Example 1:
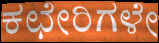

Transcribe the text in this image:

ಕಛೇರಿಗಳೇ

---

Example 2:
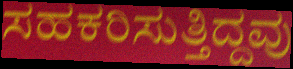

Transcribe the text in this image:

ಸಹಕರಿಸುತ್ತಿದ್ದವು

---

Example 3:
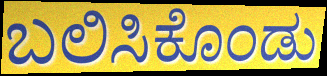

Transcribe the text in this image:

ಬಲಿಸಿಕೊಂಡು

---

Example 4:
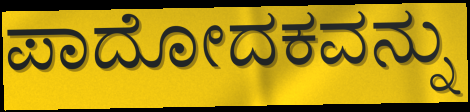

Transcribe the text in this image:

ಪಾದೋದಕವನ್ನು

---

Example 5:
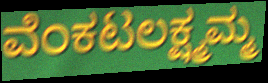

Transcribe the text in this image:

ವೆಂಕಟಲಕ್ಷ್ಮಮ್ಮ